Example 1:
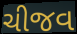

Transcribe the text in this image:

ચીજવ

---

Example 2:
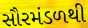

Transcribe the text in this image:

સૌરમંડળથી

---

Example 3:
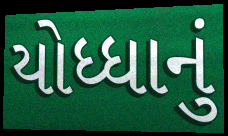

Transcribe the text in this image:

યોધ્ધાનું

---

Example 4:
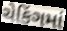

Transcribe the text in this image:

ચેકિંગમાં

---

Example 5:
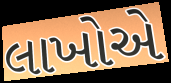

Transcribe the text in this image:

લાખોએ